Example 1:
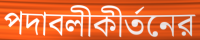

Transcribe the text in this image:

পদাবলীকীর্তনের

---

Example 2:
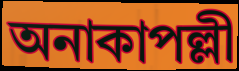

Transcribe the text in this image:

অনাকাপল্লী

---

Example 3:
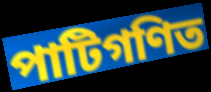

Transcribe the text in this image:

পাটিগণিত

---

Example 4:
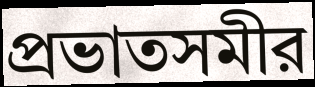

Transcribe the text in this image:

প্রভাতসমীর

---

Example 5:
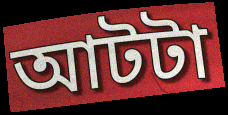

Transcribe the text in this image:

আটটা